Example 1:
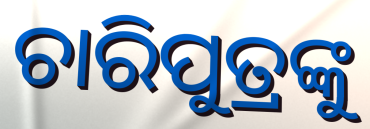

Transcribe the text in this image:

ଚାରିପୁତ୍ରଙ୍କୁ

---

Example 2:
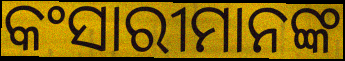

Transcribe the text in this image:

କଂସାରୀମାନଙ୍କ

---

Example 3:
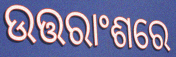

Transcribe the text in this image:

ଉତ୍ତରାଂଶରେ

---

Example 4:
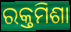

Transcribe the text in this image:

ରକ୍ତମିଶା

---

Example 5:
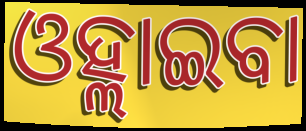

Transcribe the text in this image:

ଓହ୍ଲାଇବା